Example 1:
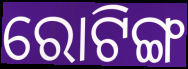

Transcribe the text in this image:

ରୋଟିଙ୍ଗ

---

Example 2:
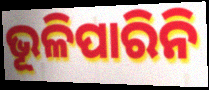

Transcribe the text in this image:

ଭୂଳିପାରିନି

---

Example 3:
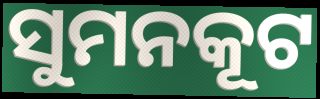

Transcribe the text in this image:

ସୁମନକୂଟ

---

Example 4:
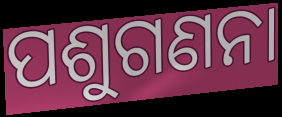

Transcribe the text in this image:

ପଶୁଗଣନା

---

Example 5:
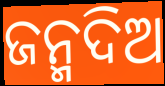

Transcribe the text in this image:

ଜନ୍ମଦିଅ